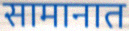
सामानात